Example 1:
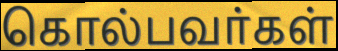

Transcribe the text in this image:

கொல்பவர்கள்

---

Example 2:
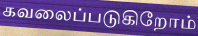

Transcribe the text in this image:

கவலைப்படுகிறோம்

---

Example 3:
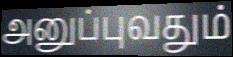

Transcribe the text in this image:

அனுப்புவதும்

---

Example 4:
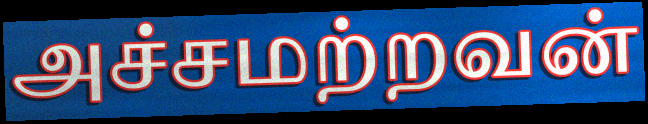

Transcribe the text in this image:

அச்சமற்றவன்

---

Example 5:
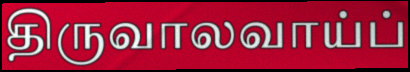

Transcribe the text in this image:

திருவாலவாய்ப்